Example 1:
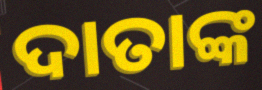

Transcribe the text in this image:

ଦାତାଙ୍କ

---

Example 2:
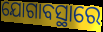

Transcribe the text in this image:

ଯୋଗାବସ୍ଥାରେ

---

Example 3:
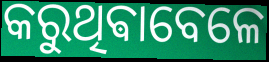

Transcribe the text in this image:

କରୁଥିଵାବେଳେ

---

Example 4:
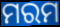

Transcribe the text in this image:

ମରମ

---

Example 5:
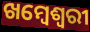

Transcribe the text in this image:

ଖମ୍ବେଶ୍ଵରୀ